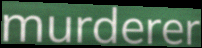
murderer